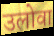
उलोवा